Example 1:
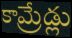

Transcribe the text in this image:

కామ్రేడ్లు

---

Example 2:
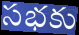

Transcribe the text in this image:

సభకు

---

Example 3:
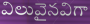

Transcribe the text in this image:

విలువైనవిగా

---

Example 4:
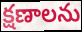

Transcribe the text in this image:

క్షణాలను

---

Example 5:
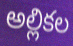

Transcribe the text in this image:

అల్లికల